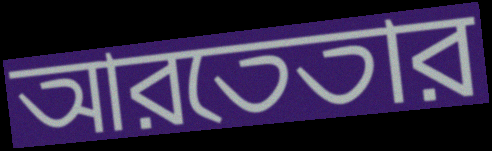
আরতেতার